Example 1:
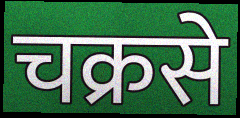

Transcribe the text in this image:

चक्रसे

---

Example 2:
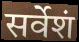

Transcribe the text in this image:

सर्वेशं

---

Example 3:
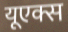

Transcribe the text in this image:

यूएक्स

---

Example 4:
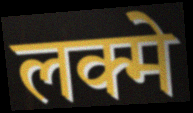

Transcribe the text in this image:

लक्मे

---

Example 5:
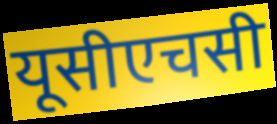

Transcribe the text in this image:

यूसीएचसी